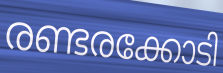
രണ്ടരക്കോടി